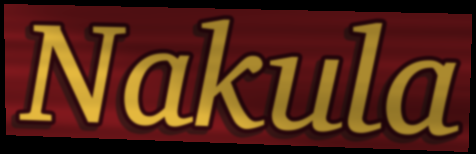
Nakula